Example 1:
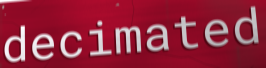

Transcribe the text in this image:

decimated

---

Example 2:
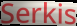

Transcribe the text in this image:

Serkis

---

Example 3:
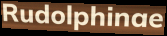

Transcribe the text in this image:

Rudolphinae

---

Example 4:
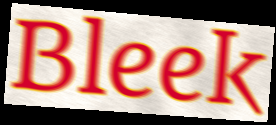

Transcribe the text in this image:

Bleek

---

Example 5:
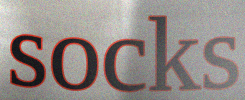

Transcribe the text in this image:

socks